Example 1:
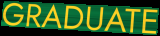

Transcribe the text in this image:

GRADUATE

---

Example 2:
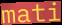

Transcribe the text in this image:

mati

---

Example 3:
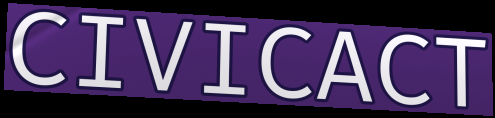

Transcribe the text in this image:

CIVICACT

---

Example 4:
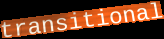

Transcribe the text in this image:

transitional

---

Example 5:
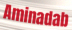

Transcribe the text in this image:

Aminadab